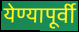
येण्यापूर्वी